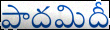
పాదమిదీ